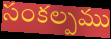
సంకల్పము